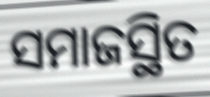
ସମାଜସ୍ଥିତ